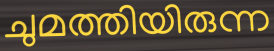
ചുമത്തിയിരുന്ന